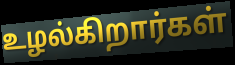
உழல்கிறார்கள்